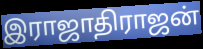
இராஜாதிராஜன்